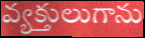
వ్యక్తులుగాను